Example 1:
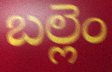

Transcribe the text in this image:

బల్లెం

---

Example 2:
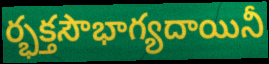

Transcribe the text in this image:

ర్భక్తసౌభాగ్యదాయినీ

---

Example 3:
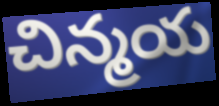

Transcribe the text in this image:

చిన్మయ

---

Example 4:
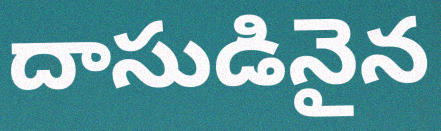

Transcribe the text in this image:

దాసుడినైన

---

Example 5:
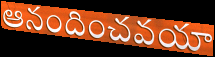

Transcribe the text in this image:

ఆనందించవయా